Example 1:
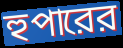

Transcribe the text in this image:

হুপারের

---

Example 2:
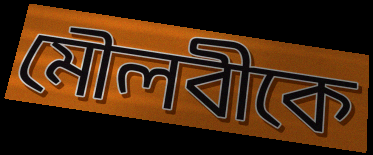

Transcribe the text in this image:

মৌলবীকে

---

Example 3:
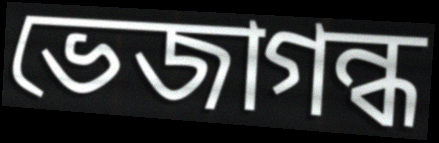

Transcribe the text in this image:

ভেজাগন্ধ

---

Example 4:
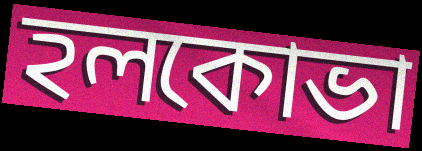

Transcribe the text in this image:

হলকোভা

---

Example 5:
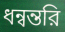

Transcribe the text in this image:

ধন্বন্তরি